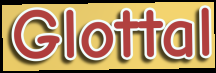
Glottal